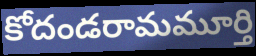
కోదండరామమూర్తి